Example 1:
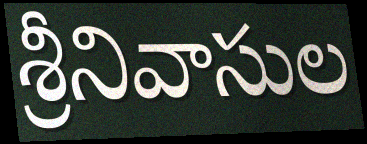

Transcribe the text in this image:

శ్రీనివాసుల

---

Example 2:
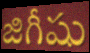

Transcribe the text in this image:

జిగీషు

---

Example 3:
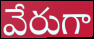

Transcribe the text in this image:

వేరుగా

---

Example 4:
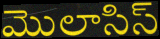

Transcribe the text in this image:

మొలాసిస్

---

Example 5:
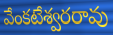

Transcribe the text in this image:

వేంకటేశ్వరరావు